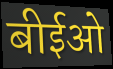
बीईओ